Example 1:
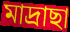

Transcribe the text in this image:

মাদ্ৰাছা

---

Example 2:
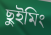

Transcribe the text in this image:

ছুইমিং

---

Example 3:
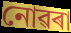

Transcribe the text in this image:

নোৱৰা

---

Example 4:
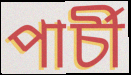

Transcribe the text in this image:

পাৰ্চী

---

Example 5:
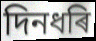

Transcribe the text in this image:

দিনধৰি